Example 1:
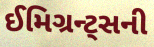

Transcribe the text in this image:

ઈમિગ્રન્ટ્સની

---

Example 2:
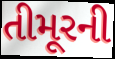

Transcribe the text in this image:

તીમૂરની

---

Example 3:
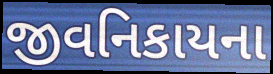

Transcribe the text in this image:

જીવનિકાયના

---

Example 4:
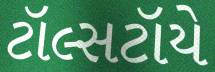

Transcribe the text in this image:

ટૉલ્સટૉયે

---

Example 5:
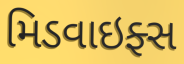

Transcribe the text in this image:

મિડવાઇફ્સ